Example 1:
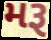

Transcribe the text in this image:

મરૂ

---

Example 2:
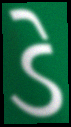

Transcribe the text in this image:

ડે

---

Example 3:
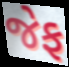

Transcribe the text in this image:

જેફ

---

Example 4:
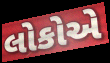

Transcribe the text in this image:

લોકોએ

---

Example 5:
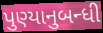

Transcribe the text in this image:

પુણ્યાનુબન્ધી